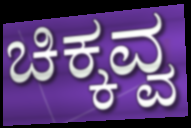
ಚಿಕ್ಕವ್ವ